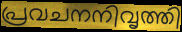
പ്രവചനനിവൃത്തി